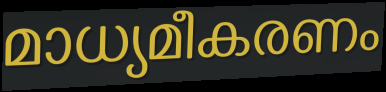
മാധ്യമീകരണം